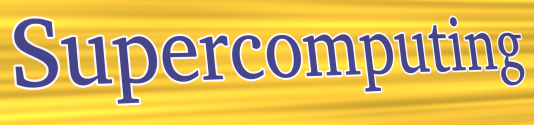
Supercomputing